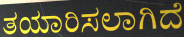
ತಯಾರಿಸಲಾಗಿದೆ